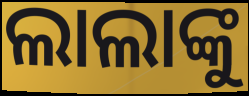
ଲାଲାଙ୍କୁ